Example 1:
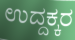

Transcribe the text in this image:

ಉದ್ದಕ್ಕರ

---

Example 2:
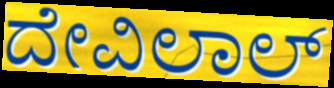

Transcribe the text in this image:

ದೇವಿಲಾಲ್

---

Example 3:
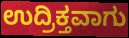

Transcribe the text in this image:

ಉದ್ರಿಕ್ತವಾಗು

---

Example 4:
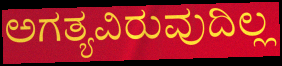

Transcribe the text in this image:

ಅಗತ್ಯವಿರುವುದಿಲ್ಲ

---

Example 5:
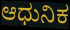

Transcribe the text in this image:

ಆಧುನಿಕ